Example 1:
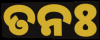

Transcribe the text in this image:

ତନଃ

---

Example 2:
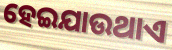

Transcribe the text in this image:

ହେଇଯାଉଥାଏ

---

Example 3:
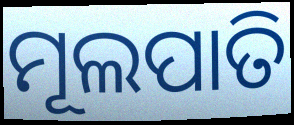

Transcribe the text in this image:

ମୂଲପାତି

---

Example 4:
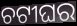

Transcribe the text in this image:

ଚଟୀଘର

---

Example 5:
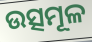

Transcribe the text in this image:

ଉତ୍ସମୂଳ